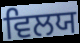
ਵਿਲਯ